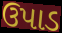
ઉપાડ